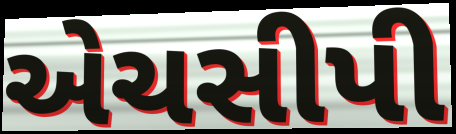
એચસીપી